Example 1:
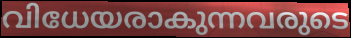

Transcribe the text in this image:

വിധേയരാകുന്നവരുടെ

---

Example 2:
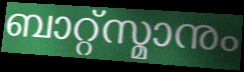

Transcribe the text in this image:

ബാറ്റ്സ്മാനും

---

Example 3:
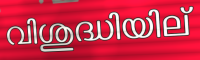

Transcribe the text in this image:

വിശുദ്ധിയില്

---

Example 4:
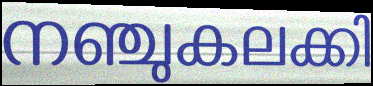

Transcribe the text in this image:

നഞ്ചുകലക്കി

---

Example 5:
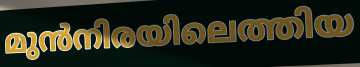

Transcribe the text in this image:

മുൻനിരയിലെത്തിയ